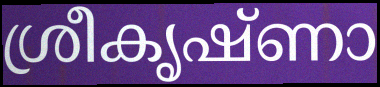
ശ്രീകൃഷ്ണാ